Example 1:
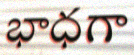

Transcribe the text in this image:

భాధగా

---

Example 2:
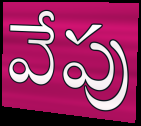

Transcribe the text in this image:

వేపు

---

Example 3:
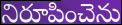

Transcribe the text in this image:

నిరూపించెను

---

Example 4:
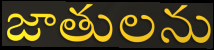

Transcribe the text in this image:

జాతులను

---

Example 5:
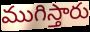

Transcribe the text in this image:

ముగిస్తారు